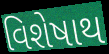
વિશેષાથ